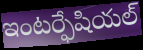
ఇంటర్ఫేషియల్